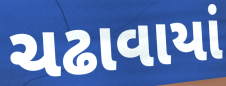
ચઢાવાયાં